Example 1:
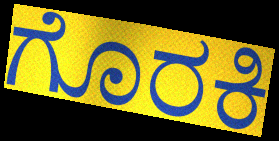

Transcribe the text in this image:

ಗೊರಕಿ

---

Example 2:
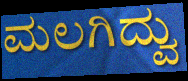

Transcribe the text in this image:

ಮಲಗಿದ್ವು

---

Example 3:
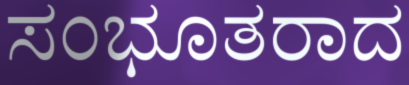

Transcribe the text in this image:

ಸಂಭೂತರಾದ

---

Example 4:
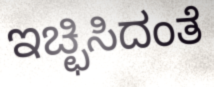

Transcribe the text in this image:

ಇಚ್ಛಿಸಿದಂತೆ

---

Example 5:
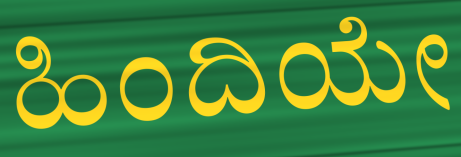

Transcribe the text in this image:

ಹಿಂದಿಯೇ